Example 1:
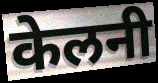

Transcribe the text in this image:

केलनी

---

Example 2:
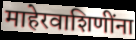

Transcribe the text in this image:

माहेरवाशिणींना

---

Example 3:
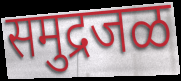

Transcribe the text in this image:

समुद्रजळ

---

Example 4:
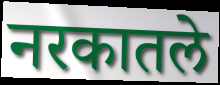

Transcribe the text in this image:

नरकातले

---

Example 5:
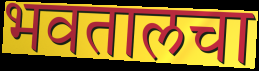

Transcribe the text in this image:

भवतालचा